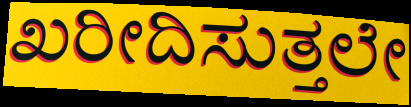
ಖರೀದಿಸುತ್ತಲೇ